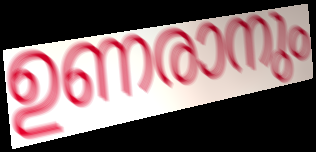
ഉണരാനും